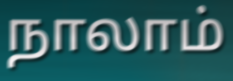
நாலாம்